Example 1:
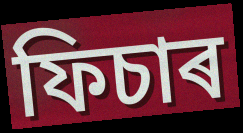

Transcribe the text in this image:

ফিচাৰ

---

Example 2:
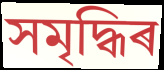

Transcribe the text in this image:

সমৃদ্ধিৰ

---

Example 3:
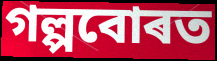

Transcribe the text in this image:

গল্পবোৰত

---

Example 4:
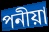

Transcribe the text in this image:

পনীয়া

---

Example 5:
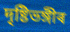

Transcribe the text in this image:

দৃষ্টিভঙ্গীৰ